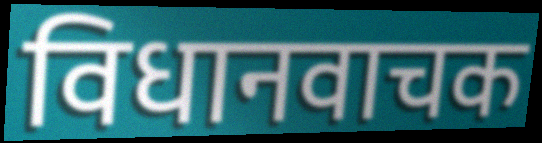
विधानवाचक